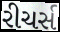
રીચર્સ